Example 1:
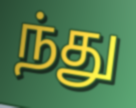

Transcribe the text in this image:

ந்து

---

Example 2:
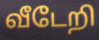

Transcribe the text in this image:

வீடேறி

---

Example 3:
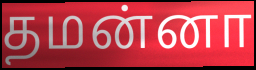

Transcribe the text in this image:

தமன்னா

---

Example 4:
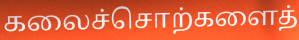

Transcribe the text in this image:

கலைச்சொற்களைத்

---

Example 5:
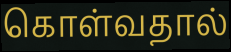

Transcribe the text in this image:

கொள்வதால்